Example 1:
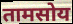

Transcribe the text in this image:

तामसोय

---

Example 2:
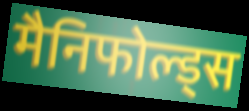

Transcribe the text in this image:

मैनिफोल्ड्स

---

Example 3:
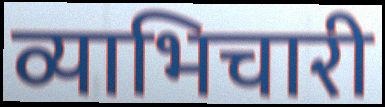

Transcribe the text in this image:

व्याभिचारी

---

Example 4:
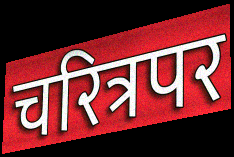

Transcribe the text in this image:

चरित्रपर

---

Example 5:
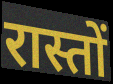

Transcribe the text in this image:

रास्तों